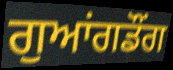
ਗੁਆਂਗਡੌਂਗ